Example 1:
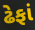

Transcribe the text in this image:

ઢેફાં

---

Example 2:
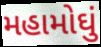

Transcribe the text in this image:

મહામોઘું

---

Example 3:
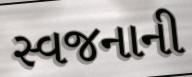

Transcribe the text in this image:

સ્વજનાની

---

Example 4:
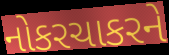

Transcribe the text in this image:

નોકરચાકરને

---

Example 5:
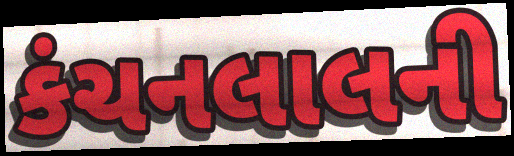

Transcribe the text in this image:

કંચનલાલની